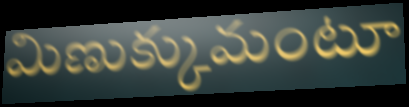
మిణుక్కుమంటూ